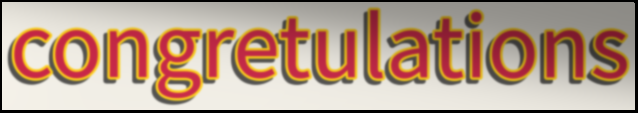
congretulations